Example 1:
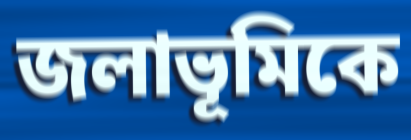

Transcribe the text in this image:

জলাভূমিকে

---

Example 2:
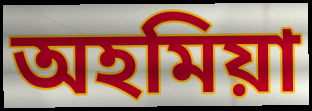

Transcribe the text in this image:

অহমিয়া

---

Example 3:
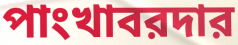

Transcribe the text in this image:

পাংখাবরদার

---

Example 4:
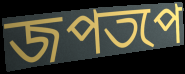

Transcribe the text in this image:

জপতপে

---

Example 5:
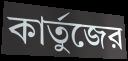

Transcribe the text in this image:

কার্তুজের